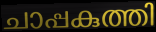
ചാപ്പകുത്തി